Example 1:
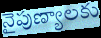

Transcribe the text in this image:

నైపుణ్యాలకు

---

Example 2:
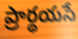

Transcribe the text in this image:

ప్రార్థయసే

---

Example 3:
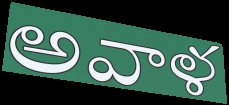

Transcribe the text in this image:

అవాళ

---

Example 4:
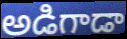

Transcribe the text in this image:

అడిగాడా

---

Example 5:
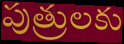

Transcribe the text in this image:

పుత్రులకు